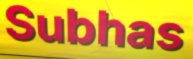
Subhas